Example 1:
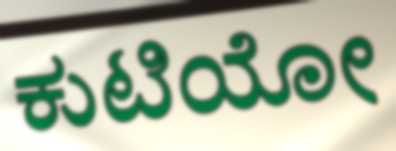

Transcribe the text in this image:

ಕುಟಿಯೋ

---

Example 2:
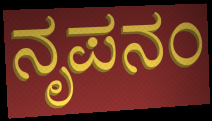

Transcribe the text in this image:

ನೃಪನಂ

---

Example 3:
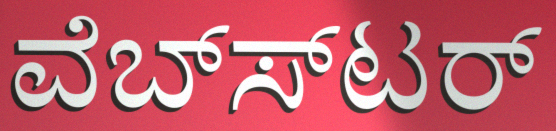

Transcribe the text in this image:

ವೆಬ್ಸ್‍ಟರ್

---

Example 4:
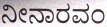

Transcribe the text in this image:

ನೀನಾರವಂ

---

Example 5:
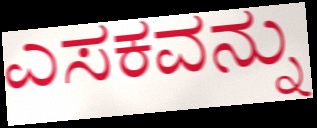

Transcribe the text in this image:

ಎಸಕವನ್ನು